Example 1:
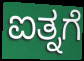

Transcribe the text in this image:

ಐತ್ನಗೆ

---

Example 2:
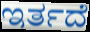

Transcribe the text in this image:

ಇರ್ತದೆ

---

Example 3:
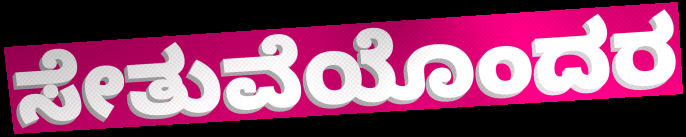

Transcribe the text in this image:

ಸೇತುವೆಯೊಂದರ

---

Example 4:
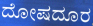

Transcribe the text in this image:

ದೋಷದೂರ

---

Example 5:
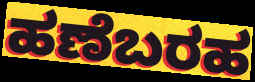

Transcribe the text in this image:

ಹಣೆಬರಹ